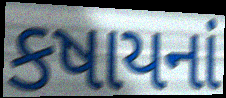
કષાયનાં